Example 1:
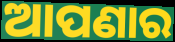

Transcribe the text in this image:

ଆପଣାର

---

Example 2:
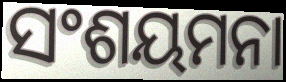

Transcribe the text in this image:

ସଂଶୟମନା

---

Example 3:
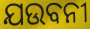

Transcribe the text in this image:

ଯଉବନୀ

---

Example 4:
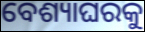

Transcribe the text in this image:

ବେଶ୍ୟାଘରକୁ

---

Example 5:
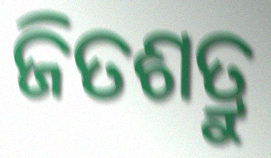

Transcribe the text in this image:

ଜିତଶତ୍ରୁ